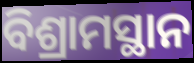
ବିଶ୍ରାମସ୍ଥାନ